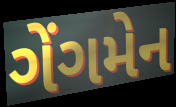
ગેંગમેન